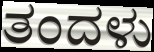
ತಂದಳು